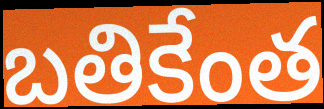
బతికేంత